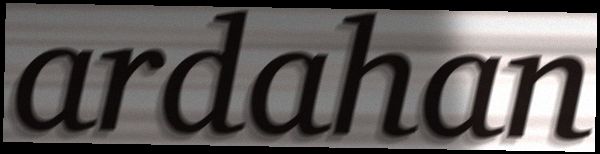
ardahan